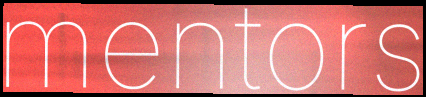
mentors